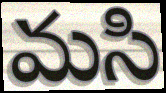
మసి